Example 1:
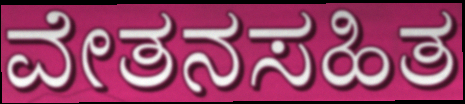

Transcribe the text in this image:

ವೇತನಸಹಿತ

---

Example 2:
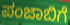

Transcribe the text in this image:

ಪಂಜಾಬಿಗೆ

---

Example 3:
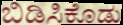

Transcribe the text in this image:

ಬಿಡಿಸಿಕೊಡು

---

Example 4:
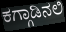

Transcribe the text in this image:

ಕಗ್ಗಾಡಿನಲಿ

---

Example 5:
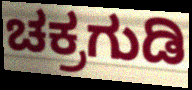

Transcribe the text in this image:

ಚಕ್ರಗುಡಿ